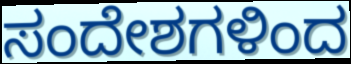
ಸಂದೇಶಗಳಿಂದ